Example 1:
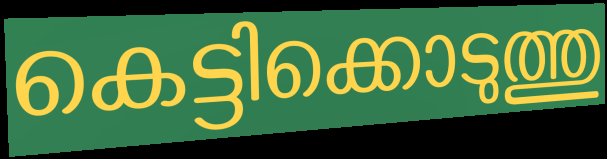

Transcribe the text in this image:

കെട്ടിക്കൊടുത്തു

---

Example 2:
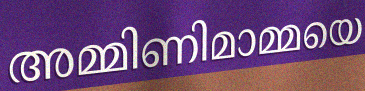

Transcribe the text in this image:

അമ്മിണിമാമ്മയെ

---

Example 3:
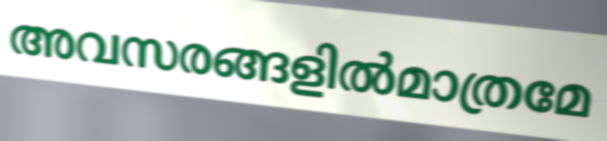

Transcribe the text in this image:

അവസരങ്ങളിൽമാത്രമേ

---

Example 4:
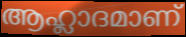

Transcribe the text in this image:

ആഹ്ലാദമാണ്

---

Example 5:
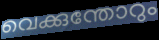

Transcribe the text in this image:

വെക്കുന്തോറും